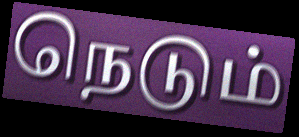
நெடும்